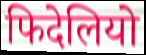
फिदेलियो